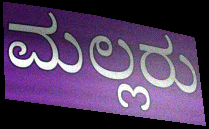
ಮಲ್ಲರು